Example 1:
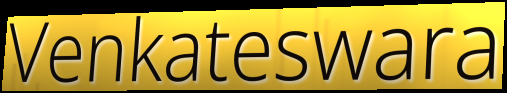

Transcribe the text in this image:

Venkateswara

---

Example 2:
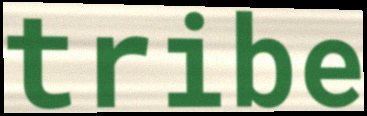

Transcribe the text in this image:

tribe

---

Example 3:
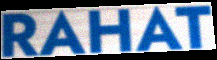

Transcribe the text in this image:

RAHAT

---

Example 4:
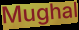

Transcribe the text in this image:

Mughal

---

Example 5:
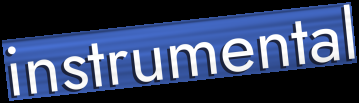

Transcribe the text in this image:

instrumental